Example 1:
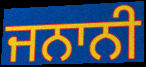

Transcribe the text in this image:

ਜਨਾਨੀ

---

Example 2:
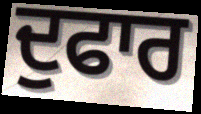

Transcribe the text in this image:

ਦੁਫਾਰ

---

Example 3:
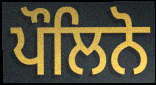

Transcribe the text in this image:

ਪੌਲਿਨੋ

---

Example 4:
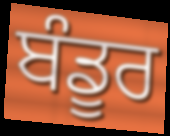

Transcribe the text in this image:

ਬੰਡੂਰ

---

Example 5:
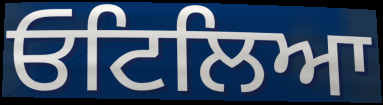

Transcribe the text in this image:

ਓਟਿਲਿਆ